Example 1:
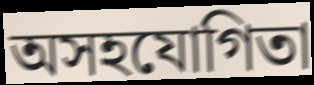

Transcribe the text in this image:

অসহযোগিতা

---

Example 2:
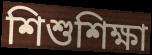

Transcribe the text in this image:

শিশুশিক্ষা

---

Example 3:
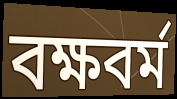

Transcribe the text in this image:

বক্ষবর্ম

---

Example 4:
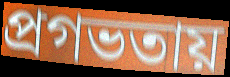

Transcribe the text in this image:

প্রগভতায়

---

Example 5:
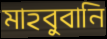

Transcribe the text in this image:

মাহবুবানি